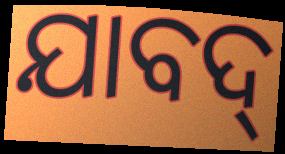
ଯାବଦ୍